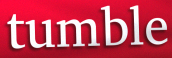
tumble